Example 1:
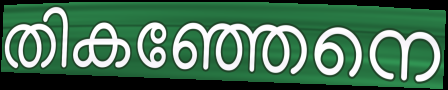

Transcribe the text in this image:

തികഞ്ഞേനെ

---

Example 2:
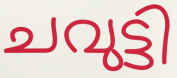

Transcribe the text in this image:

ചവുട്ടി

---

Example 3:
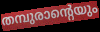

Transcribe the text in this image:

തമ്പുരാന്റെയും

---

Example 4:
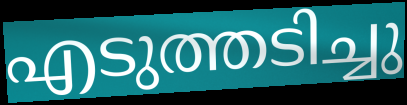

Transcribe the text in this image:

എടുത്തടിച്ചു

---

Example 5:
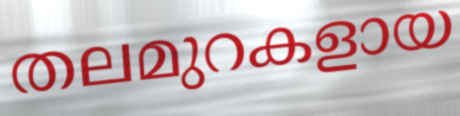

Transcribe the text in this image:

തലമുറകളായ